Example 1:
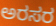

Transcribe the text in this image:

ಅರಸರ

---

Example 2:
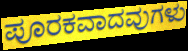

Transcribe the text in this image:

ಪೂರಕವಾದವುಗಳು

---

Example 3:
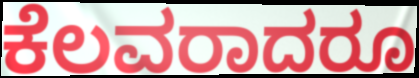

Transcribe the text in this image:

ಕೆಲವರಾದರೂ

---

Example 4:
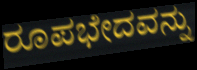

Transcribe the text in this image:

ರೂಪಭೇದವನ್ನು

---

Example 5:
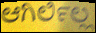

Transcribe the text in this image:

ಆಗಿರ್ಲಿಲ್ಲ